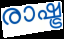
രാഷ്ട്ര